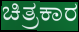
ಚಿತ್ರಕಾರ